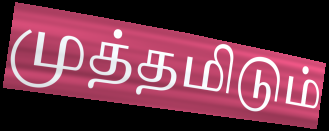
முத்தமிடும்